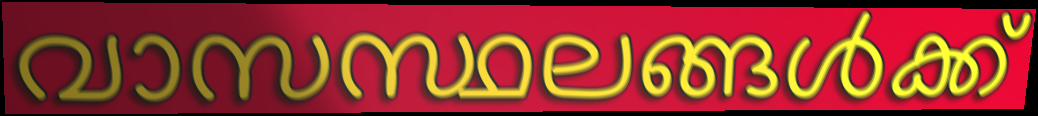
വാസസ്ഥലങ്ങൾക്ക്